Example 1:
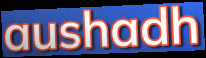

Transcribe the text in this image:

aushadh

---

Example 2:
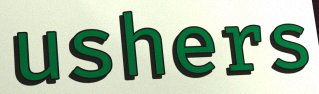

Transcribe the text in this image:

ushers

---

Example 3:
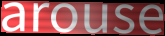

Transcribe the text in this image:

arouse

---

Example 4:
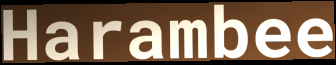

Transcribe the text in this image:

Harambee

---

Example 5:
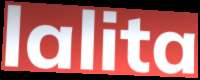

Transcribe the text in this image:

lalita